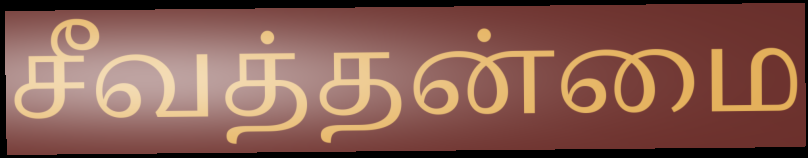
சீவத்தன்மை